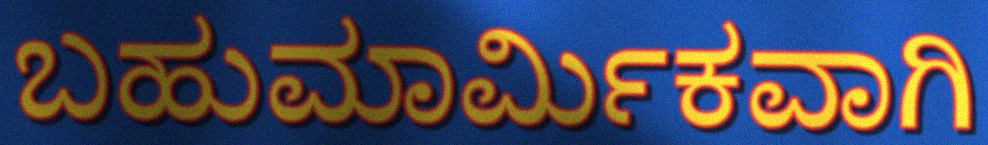
ಬಹುಮಾರ್ಮಿಕವಾಗಿ